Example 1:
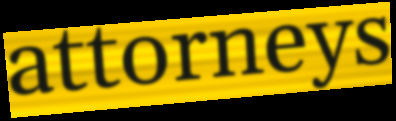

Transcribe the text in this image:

attorneys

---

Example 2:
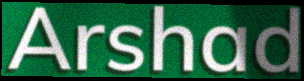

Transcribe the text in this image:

Arshad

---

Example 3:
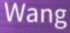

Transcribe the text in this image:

Wang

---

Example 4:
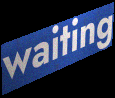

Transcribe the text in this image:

waiting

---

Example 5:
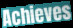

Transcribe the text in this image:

Achieves